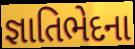
જ્ઞાતિભેદના